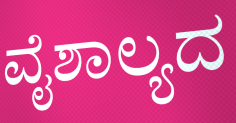
ವೈಶಾಲ್ಯದ